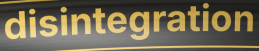
disintegration